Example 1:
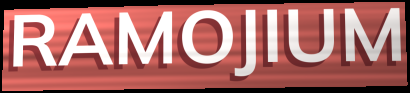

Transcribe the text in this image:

RAMOJIUM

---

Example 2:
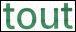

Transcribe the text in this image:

tout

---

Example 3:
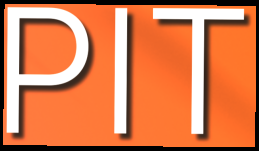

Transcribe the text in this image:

PIT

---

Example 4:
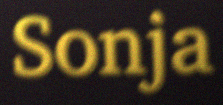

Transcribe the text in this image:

Sonja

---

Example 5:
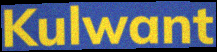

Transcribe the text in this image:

Kulwant